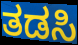
ತಡಸಿ